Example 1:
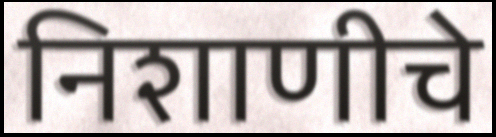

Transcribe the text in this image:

निशाणीचे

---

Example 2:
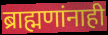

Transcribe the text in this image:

ब्राह्मणांनाही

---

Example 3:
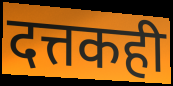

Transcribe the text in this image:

दत्तकही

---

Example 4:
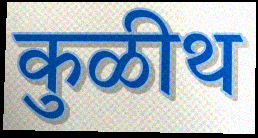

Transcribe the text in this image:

कुळीथ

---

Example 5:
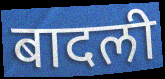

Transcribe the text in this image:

बादली